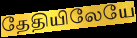
தேதியிலேயே